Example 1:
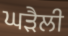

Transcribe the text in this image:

ਘੜੈਲੀ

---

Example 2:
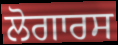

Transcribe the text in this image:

ਲੋਗਾਰਸ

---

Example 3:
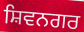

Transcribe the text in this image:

ਸ਼ਿਵਨਗਰ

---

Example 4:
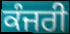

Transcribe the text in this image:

ਕੰਜਰੀ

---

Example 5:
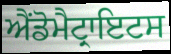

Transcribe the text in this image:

ਐਂਡੋਮੈਟ੍ਰਾਇਟਸ